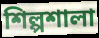
শিল্পশালা